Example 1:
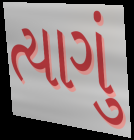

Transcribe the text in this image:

ત્યાગું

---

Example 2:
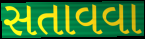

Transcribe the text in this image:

સતાવવા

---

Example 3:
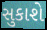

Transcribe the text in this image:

સુકાશે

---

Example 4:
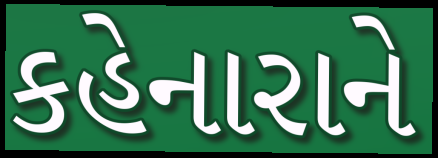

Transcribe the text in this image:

કહેનારાને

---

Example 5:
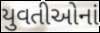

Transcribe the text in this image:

યુવતીઓનાં